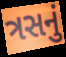
ત્રસનું